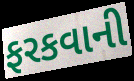
ફરકવાની